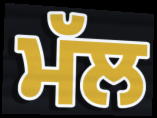
ਮੱਲ